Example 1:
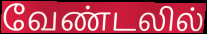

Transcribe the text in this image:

வேண்டலில்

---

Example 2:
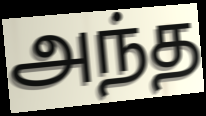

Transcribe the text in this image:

அந்த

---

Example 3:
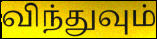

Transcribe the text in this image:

விந்துவும்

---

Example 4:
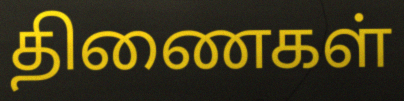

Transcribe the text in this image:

திணைகள்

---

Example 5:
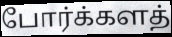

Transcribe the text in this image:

போர்க்களத்